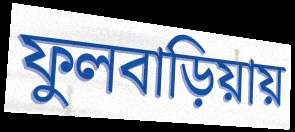
ফুলবাড়িয়ায়